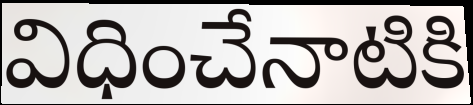
విధించేనాటికి